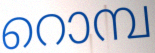
റൊമ്പ